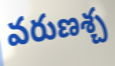
వరుణశ్చ